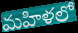
మహిళలో